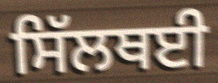
ਸਿੱਲਥਈ